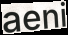
aeni